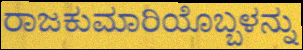
ರಾಜಕುಮಾರಿಯೊಬ್ಬಳನ್ನು